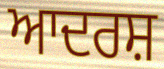
ਆਦਰਸ਼